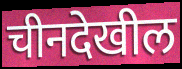
चीनदेखील